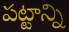
పట్టాన్ని